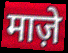
माज़े